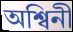
অশ্বিনী